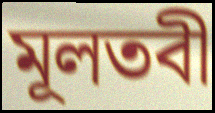
মূলতবী